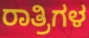
ರಾತ್ರಿಗಳ